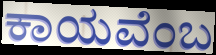
ಕಾಯವೆಂಬ